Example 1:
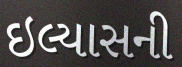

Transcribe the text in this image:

ઇલ્યાસની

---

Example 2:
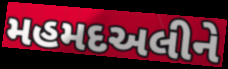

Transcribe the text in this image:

મહમદઅલીને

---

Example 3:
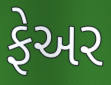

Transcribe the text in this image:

ફેઅર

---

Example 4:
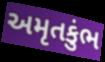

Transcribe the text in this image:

અમૃતકુંભ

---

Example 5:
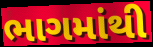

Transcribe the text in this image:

ભાગમાંથી